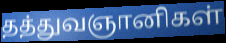
தத்துவஞானிகள்